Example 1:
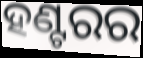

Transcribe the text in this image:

ହଣ୍ଟରର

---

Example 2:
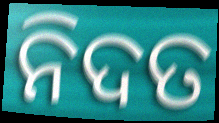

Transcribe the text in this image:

ନିଦତ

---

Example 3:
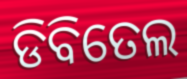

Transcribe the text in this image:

ଡିବିତେଲ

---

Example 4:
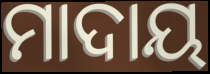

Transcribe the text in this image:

ମାଦାୟ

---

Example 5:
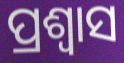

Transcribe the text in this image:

ପ୍ରଶ୍ୱାସ